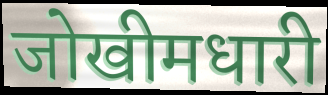
जोखीमधारी